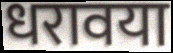
धरावया